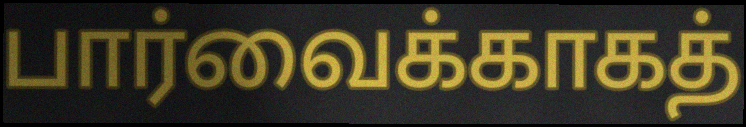
பார்வைக்காகத்